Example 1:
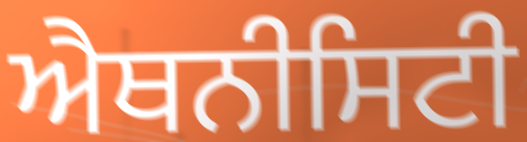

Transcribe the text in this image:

ਐਥਨੀਸਿਟੀ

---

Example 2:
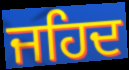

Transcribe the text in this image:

ਜਹਿਦ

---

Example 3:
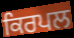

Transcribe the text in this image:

ਕਿਰਪਲ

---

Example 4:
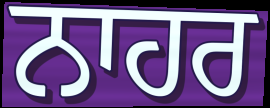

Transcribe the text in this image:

ਨਾਹਰ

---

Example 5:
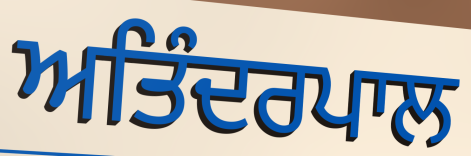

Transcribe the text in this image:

ਅਤਿੰਦਰਪਾਲ